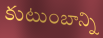
కుటుంబాన్ని